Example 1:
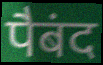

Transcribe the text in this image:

पैबंद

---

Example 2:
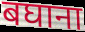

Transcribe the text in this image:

बघाना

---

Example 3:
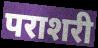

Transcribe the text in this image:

पराशरी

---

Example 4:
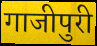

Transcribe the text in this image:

गाजीपुरी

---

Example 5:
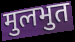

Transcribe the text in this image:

मुलभुत